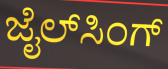
ಜೈಲ್‌ಸಿಂಗ್